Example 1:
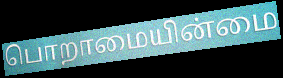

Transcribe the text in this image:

பொறாமையின்மை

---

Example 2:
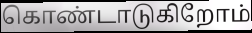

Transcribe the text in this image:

கொண்டாடுகிறோம்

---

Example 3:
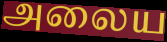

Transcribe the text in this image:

அலைய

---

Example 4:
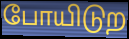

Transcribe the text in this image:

போயிடுற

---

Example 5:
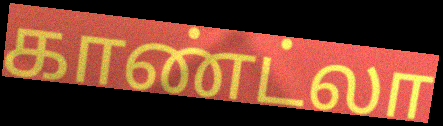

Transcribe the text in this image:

காண்ட்லா